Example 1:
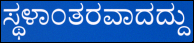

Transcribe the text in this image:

ಸ್ಥಳಾಂತರವಾದದ್ದು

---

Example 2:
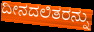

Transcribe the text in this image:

ದೀನದಲಿತರನ್ನು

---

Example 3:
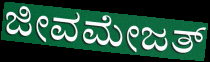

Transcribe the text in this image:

ಜೀವಮೇಜತ್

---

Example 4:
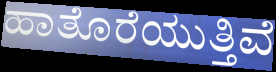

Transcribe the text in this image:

ಹಾತೊರೆಯುತ್ತಿವೆ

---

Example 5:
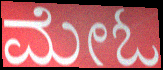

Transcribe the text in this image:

ಮೇಓ